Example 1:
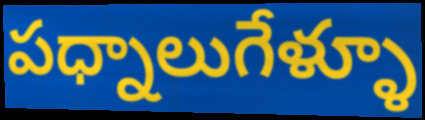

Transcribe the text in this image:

పధ్నాలుగేళ్ళూ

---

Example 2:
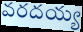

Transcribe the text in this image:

వరదయ్య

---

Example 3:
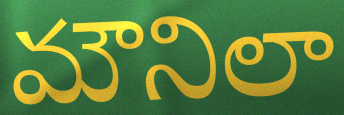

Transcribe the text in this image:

మౌనిలా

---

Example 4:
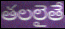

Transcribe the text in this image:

తలలైతే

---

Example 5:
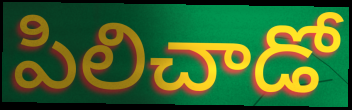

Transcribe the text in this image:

పిలిచాడో